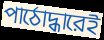
পাঠোদ্ধারেই